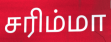
சரிம்மா